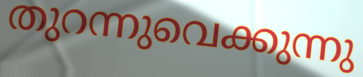
തുറന്നുവെക്കുന്നു